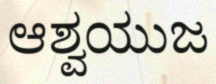
ಆಶ್ವಯುಜ